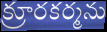
క్రూరకర్మను